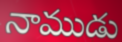
నాముడు